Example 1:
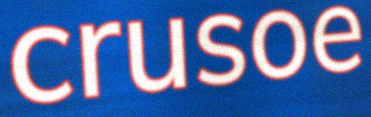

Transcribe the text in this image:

crusoe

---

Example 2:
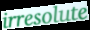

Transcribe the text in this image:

irresolute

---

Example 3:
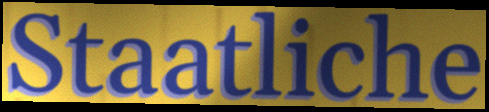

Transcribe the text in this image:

Staatliche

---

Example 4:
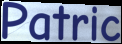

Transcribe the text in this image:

Patric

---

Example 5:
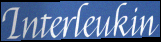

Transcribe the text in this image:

Interleukin